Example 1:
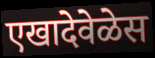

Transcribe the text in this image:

एखादेवेळेस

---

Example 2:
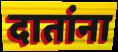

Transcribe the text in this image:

दातांना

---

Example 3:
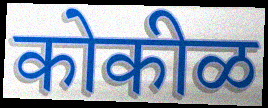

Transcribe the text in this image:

कोकीळ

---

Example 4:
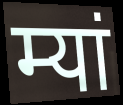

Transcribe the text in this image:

म्यां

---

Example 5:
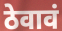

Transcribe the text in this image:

ठेवावं